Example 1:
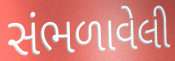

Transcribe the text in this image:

સંભળાવેલી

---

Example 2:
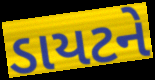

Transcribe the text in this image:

ડાયટને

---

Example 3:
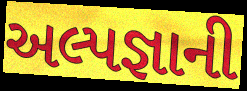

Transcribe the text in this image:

અલ્પજ્ઞાની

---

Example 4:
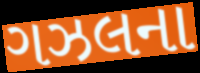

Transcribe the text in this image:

ગઝલના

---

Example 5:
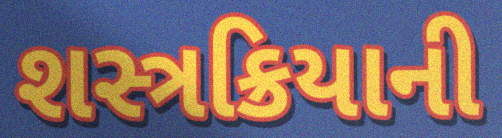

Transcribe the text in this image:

શસ્ત્રક્રિયાની